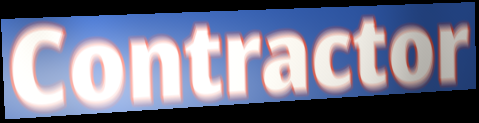
Contractor